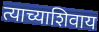
त्याच्याशिवाय